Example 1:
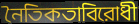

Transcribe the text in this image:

নৈতিকতাবিরোধী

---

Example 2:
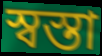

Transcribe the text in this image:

স্বস্তা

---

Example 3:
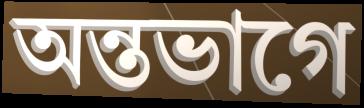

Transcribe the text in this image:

অন্তভাগে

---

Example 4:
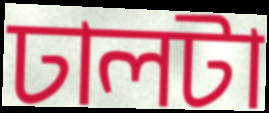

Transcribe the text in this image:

ঢালটা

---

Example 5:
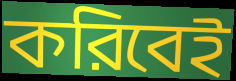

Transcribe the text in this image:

করিবেই